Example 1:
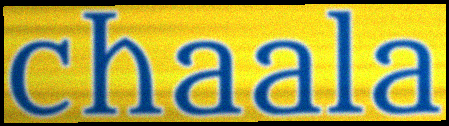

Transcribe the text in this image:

chaala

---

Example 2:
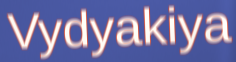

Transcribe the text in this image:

Vydyakiya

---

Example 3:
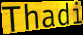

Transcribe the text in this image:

Thadi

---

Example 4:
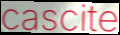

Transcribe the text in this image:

cascite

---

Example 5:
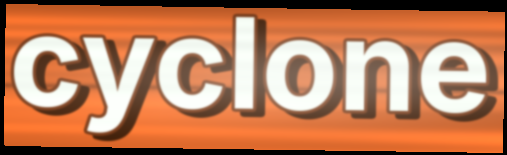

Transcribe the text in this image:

cyclone